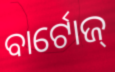
ବାର୍ଟୋଜ୍